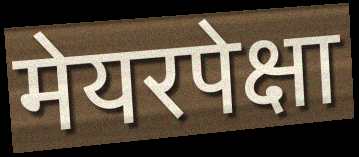
मेयरपेक्षा